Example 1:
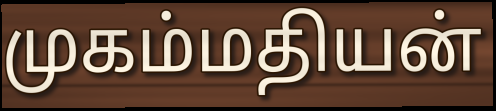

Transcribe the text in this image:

முகம்மதியன்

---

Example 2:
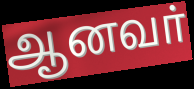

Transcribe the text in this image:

ஆனவர்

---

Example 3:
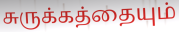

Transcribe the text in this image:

சுருக்கத்தையும்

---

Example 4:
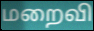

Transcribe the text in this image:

மறைவி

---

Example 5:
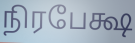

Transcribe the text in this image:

நிரபேக்ஷ